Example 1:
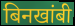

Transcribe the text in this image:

बिनखांबी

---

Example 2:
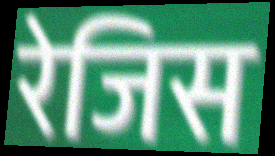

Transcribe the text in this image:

रेजिस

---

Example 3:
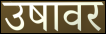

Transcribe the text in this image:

उषावर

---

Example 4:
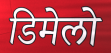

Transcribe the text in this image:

डिमेलो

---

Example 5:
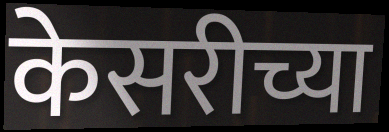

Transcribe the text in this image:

केसरीच्या